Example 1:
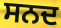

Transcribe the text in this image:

ਸਨਦ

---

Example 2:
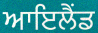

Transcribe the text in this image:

ਆਇਲੈੰਡ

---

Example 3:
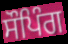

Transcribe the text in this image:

ਸੌਪਿੰਗ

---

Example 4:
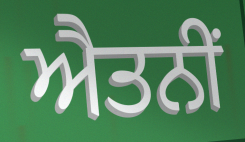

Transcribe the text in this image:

ਐਤਨੀਂ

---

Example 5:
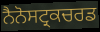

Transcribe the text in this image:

ਨੈਨੋਸਟ੍ਰਕਚਰਡ